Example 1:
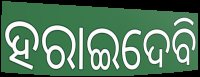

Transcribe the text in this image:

ହରାଇଦେବି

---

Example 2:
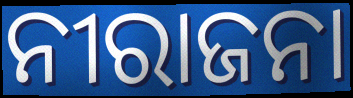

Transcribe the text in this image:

ନୀରାଜନା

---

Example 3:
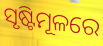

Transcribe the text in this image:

ସୃଷ୍ଟିମୂଳରେ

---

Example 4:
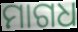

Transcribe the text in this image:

ମାଗଧ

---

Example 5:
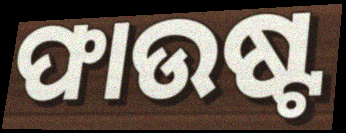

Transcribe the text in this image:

ଫାଉଷ୍ଟ